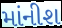
માંનીશ